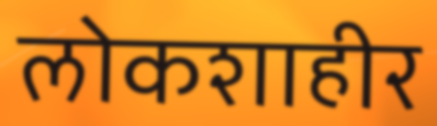
लोकशाहीर